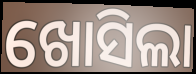
ଖୋସିଲା